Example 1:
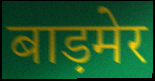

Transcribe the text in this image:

बाड़मेर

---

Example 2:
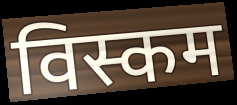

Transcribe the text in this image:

विस्कम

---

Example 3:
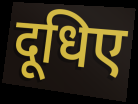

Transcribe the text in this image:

दूधिए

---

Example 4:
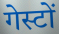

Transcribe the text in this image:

गेस्टों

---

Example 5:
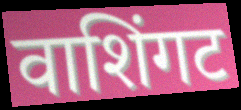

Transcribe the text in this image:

वाशिंगट